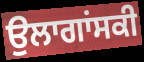
ਉਲਾਗਾਂਸਕੀ